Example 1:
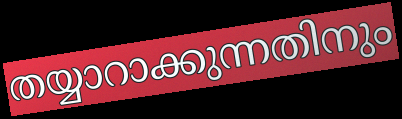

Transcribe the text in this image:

തയ്യാറാക്കുന്നതിനും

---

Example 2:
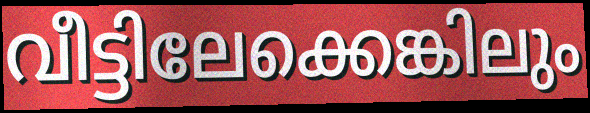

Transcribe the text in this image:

വീട്ടിലേക്കെങ്കിലും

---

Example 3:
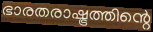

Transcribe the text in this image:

ഭാരതരാഷ്ട്രത്തിന്റെ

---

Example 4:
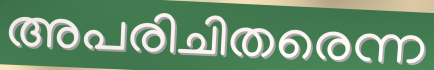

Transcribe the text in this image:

അപരിചിതരെന്ന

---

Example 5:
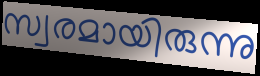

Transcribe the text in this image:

സ്വരമായിരുന്നു